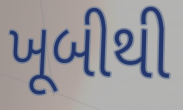
ખૂબીથી